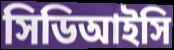
সিডিআইসি